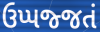
ઉપ્પજ્જતં